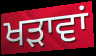
ਖੜਾਵਾਂ